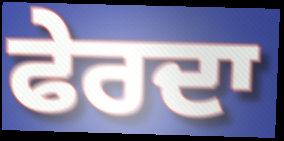
ਫੇਰਦਾ